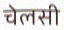
चेलसी